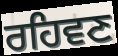
ਰਹਿਵਣ